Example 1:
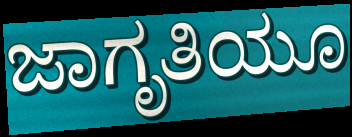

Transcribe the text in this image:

ಜಾಗೃತಿಯೂ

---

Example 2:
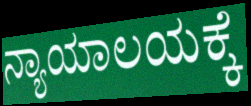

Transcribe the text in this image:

ನ್ಯಾಯಾಲಯಕ್ಕೆ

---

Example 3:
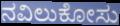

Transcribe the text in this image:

ನವಿಲುಕೋಸು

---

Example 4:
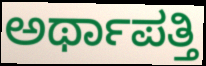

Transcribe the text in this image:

ಅರ್ಥಾಪತ್ತಿ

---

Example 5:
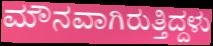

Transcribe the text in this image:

ಮೌನವಾಗಿರುತ್ತಿದ್ದಳು